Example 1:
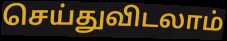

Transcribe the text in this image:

செய்துவிடலாம்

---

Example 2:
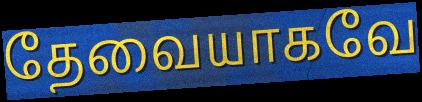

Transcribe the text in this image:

தேவையாகவே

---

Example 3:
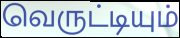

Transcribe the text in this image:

வெருட்டியும்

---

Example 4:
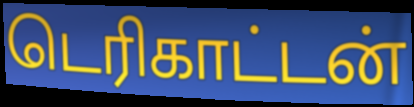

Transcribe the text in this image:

டெரிகாட்டன்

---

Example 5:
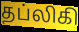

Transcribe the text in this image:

தப்லிகி